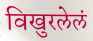
विखुरलेलं